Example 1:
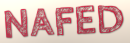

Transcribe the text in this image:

NAFED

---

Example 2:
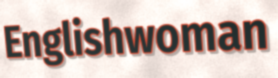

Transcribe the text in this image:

Englishwoman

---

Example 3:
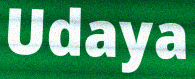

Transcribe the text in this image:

Udaya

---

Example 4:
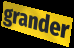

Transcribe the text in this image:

grander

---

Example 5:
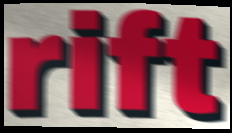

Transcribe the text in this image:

rift